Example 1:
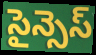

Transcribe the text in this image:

సైన్సెస్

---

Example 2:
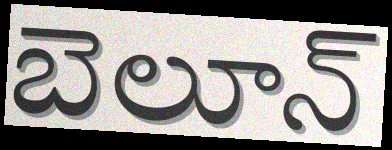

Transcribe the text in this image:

బెలూన్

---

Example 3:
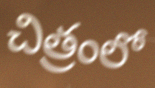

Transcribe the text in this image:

చిత్రంలో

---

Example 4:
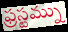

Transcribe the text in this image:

ఫ్రస్టమ్ను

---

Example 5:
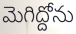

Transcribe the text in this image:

మెగిద్దోను